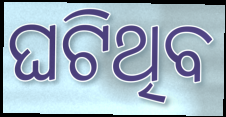
ଘଟିଥିବ